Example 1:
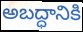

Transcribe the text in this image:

అబద్ధానికి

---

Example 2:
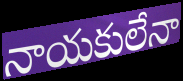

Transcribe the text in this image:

నాయకులేనా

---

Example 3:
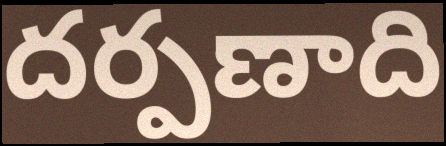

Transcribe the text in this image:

దర్పణాది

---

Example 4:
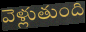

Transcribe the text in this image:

వెళ్లుతుంది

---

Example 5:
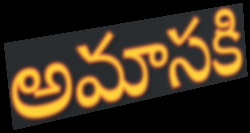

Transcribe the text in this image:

అమాసకి